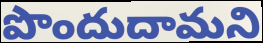
పొందుదామని